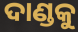
ଦାଣ୍ଡକୁ